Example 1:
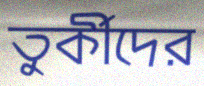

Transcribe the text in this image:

তুর্কীদের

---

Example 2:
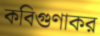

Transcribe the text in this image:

কবিগুণাকর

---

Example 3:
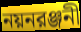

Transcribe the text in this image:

নয়নরঞ্জনী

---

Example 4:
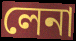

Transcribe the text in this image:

লেনা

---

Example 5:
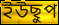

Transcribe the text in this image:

ইউছুপ